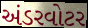
અંડરવોટર